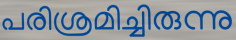
പരിശ്രമിച്ചിരുന്നു